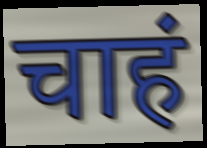
चाहं